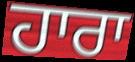
ਹਾਰਾ